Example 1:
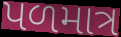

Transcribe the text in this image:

પળમાત્ર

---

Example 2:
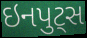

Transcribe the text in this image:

ઇનપુટ્સ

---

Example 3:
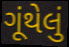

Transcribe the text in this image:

ગૂંથેલું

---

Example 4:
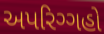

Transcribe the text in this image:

અપરિગ્ગહો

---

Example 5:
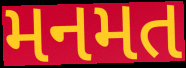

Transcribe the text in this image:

મનમત